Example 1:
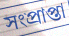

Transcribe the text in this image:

সংপ্রাপ্তা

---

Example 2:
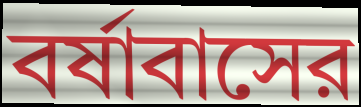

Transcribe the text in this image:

বর্ষাবাসের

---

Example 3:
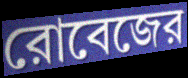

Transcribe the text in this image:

রোবেজের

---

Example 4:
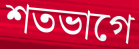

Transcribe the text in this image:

শতভাগে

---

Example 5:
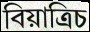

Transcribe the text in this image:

বিয়াত্রিচ